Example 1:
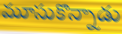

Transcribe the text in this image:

మూసుకొన్నాడు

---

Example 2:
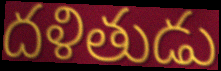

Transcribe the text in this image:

దళితుడు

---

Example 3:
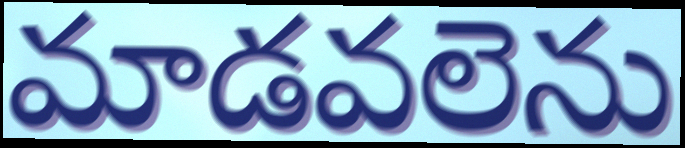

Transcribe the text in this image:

మాడవలెను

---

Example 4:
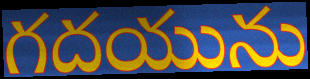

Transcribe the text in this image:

గదయును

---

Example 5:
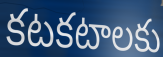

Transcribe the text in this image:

కటకటాలకు